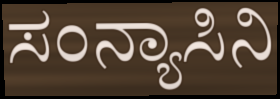
ಸಂನ್ಯಾಸಿನಿ